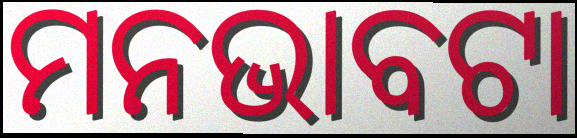
ମନଭାବଟା